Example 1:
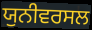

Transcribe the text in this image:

ਯੁਨੀਵਰਸਲ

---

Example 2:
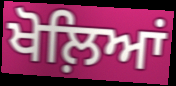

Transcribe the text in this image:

ਖੋਲ਼ਿਆਂ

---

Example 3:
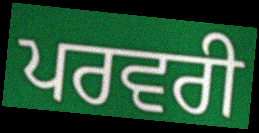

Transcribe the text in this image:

ਪਰਵਰੀ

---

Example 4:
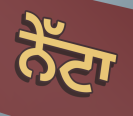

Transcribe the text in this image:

ਨੇੱਟਾ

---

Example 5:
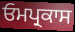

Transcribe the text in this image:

ਓਮਪ੍ਰਕਾਸ